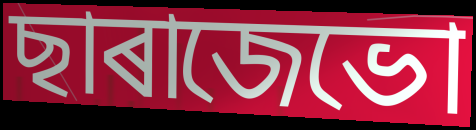
ছাৰাজেভো